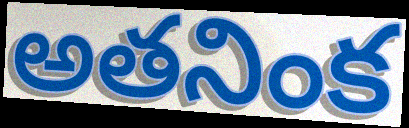
అతనింక